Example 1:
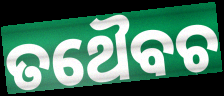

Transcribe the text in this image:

ତଥୈବଚ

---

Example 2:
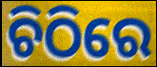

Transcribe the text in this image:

ଚିଠିରେ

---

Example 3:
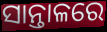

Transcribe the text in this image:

ସାନ୍ତାଳରେ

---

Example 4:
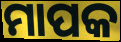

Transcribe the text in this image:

ମାପକ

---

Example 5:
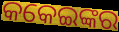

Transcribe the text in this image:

କକେଇଙ୍କର